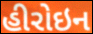
હીરોઇન